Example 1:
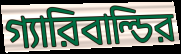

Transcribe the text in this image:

গ্যারিবাল্ডির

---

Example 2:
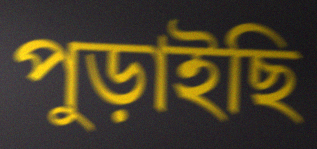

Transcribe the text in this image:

পুড়াইছি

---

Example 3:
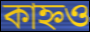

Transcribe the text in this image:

কাহ্নও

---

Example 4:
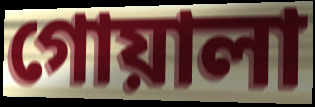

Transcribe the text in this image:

গোয়ালা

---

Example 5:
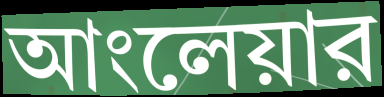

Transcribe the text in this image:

আংলেয়ার